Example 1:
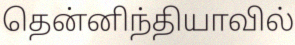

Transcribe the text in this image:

தென்னிந்தியாவில்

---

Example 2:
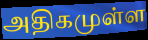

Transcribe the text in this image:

அதிகமுள்ள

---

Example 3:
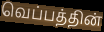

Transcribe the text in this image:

வெப்பத்தின்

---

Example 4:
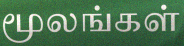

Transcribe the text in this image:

மூலங்கள்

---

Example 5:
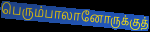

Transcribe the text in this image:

பெரும்பாலானோருக்குத்